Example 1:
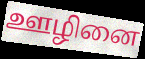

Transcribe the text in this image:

ஊழினை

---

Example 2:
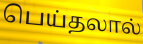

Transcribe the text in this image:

பெய்தலால்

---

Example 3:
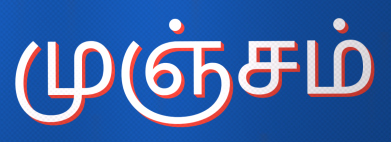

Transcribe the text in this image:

முஞ்சம்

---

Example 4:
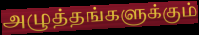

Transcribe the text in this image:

அழுத்தங்களுக்கும்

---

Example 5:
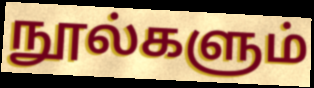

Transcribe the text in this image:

நூல்களும்